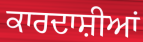
ਕਾਰਦਾਸ਼ੀਆਂ